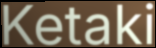
Ketaki